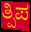
ತ್ಪಿಪ